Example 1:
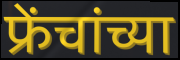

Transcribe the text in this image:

फ्रेंचांच्या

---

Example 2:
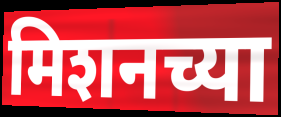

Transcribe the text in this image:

मिशनच्या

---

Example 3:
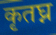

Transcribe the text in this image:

कृतघ्न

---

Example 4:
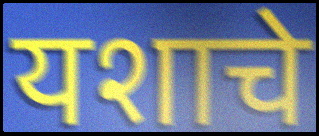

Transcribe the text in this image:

यशाचे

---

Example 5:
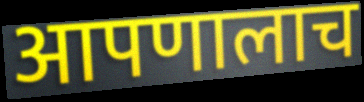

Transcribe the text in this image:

आपणालाच